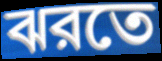
ঝরতে